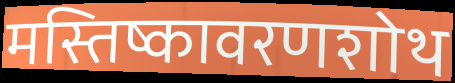
मस्तिष्कावरणशोथ